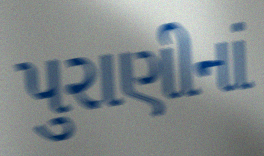
પુરાણીનાં